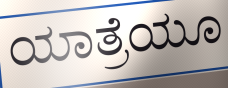
ಯಾತ್ರೆಯೂ